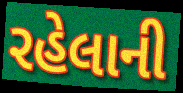
રહેલાની